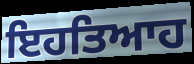
ਇਹਤਿਆਹ